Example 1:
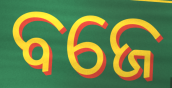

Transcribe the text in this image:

ବଜେ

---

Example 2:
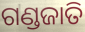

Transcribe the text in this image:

ଗଣ୍ଡଜାତି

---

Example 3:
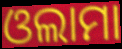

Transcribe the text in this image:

ଓଲାମା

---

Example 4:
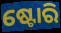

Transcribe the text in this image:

ଷ୍ଟୋରି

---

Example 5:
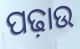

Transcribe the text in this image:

ପଢ଼ାଉ